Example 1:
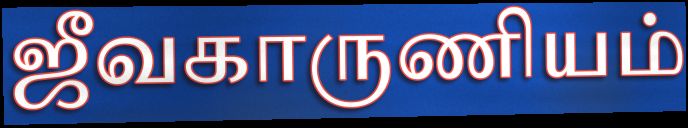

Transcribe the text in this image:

ஜீவகாருணியம்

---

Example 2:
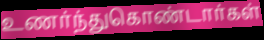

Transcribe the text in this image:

உணர்ந்துகொண்டார்கள்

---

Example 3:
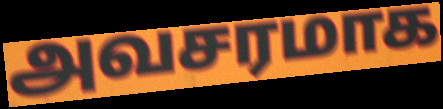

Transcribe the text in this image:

அவசரமாக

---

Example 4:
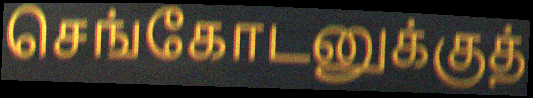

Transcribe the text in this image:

செங்கோடனுக்குத்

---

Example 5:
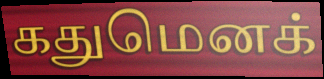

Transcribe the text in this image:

கதுமெனக்